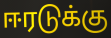
ஈரடுக்கு